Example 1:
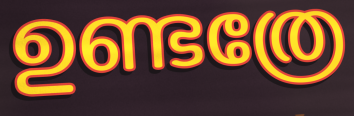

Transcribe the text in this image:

ഉണ്ടത്രേ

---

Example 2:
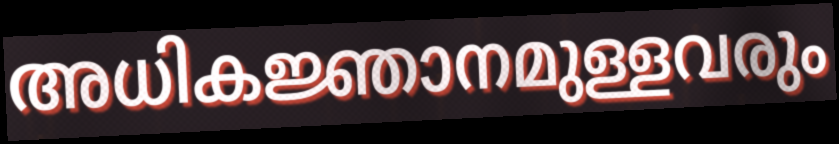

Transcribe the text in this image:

അധികജ്ഞാനമുള്ളവരും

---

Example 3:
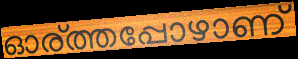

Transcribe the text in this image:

ഓര്ത്തപ്പോഴാണ്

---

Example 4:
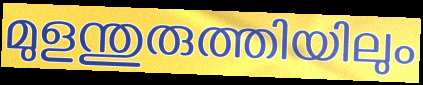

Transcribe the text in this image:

മുളന്തുരുത്തിയിലും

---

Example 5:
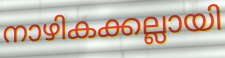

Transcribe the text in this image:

നാഴികക്കല്ലായി